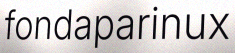
fondaparinux